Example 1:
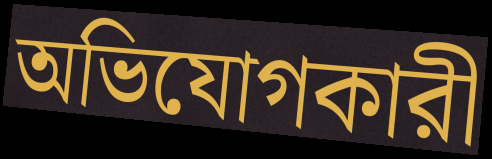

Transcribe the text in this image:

অভিযোগকারী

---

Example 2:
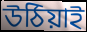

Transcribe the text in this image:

উঠিয়াই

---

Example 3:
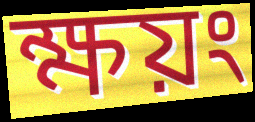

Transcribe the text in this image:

ক্ষয়ং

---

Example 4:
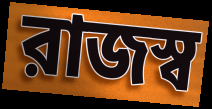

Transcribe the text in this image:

রাজস্ব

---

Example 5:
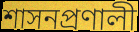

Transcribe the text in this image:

শাসনপ্রণালী